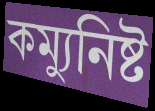
কম্যুনিষ্ট